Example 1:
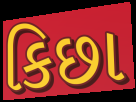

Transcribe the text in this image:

કિછા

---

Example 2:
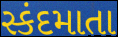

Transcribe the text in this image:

સ્કંદમાતા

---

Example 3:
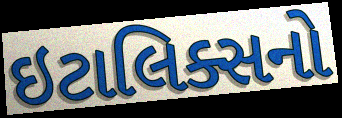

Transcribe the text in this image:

ઇટાલિક્સનો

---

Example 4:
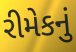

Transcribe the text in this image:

રીમેકનું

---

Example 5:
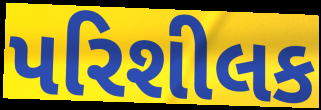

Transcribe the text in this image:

પરિશીલક